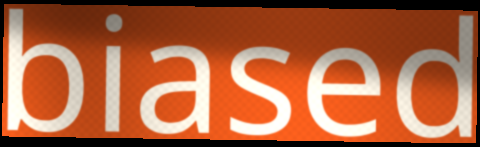
biased